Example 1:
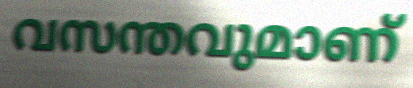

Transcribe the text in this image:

വസന്തവുമാണ്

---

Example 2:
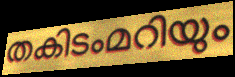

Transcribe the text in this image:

തകിടംമറിയും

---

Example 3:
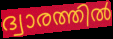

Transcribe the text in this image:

ദ്വാരത്തിൽ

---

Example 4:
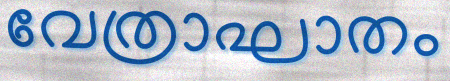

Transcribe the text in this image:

വേത്രാഘാതം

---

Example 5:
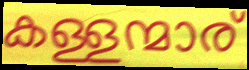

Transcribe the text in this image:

കള്ളന്മാര്